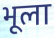
भूला